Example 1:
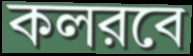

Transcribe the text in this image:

কলরবে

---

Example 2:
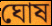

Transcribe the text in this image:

ঘোষ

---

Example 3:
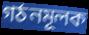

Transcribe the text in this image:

গঠনমূলক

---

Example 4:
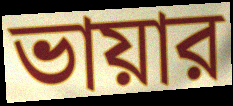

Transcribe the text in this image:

ভায়ার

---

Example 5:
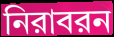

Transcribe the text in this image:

নিরাবরন